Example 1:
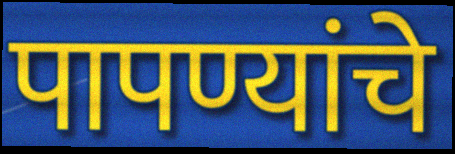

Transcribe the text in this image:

पापण्यांचे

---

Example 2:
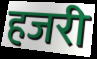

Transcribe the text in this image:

हजरी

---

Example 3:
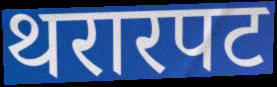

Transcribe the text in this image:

थरारपट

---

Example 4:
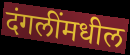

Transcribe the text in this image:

दंगलींमधील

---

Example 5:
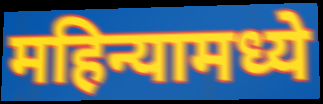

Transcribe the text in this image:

महिन्यामध्ये